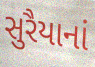
સુરૈયાનાં